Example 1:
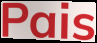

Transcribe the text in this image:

Pais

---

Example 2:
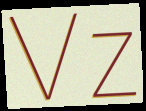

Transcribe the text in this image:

Vz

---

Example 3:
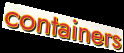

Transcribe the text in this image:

containers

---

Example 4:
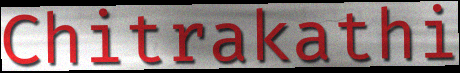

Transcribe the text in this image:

Chitrakathi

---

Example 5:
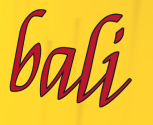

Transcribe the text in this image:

bali